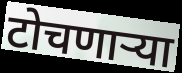
टोचणाऱ्या